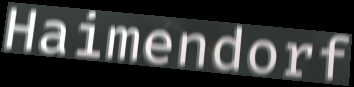
Haimendorf